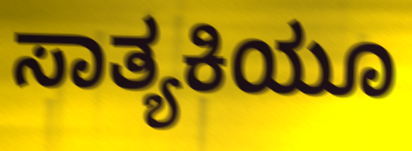
ಸಾತ್ಯಕಿಯೂ